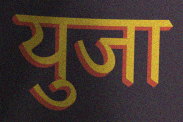
युजा